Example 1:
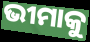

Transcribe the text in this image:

ଭୀମାକୁ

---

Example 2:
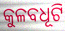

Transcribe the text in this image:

କୁଳବଧୂଟି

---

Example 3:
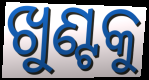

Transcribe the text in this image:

ଖୁଣ୍ଟକୁ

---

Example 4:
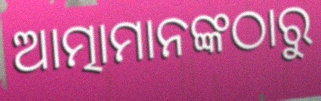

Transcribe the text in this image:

ଆତ୍ମାମାନଙ୍କଠାରୁ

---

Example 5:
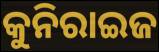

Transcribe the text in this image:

କୁନିରାଇଜ